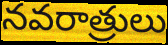
నవరాత్రులు